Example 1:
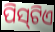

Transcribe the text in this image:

ପିସ୍‌ଟିଏ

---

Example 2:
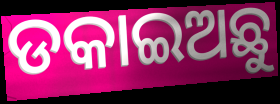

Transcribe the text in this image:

ଡକାଇଅଛୁ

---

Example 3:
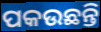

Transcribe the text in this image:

ପକଉଛନ୍ତି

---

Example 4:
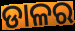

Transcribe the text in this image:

ଡାଳର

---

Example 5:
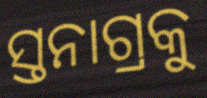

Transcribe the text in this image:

ସ୍ତନାଗ୍ରକୁ